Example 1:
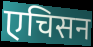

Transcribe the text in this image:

एचिसन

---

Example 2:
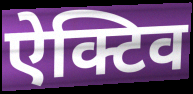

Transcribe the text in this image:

ऐक्टिव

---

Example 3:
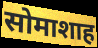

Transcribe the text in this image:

सोमाशाह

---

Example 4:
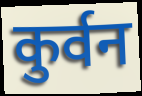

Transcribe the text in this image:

कुर्वन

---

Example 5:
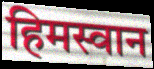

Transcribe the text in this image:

हिमस्वान